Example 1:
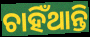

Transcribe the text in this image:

ଚାହିଁଥାନ୍ତି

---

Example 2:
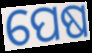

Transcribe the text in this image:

ପେଷ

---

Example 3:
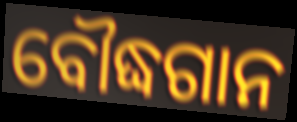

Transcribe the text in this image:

ବୌଦ୍ଧଗାନ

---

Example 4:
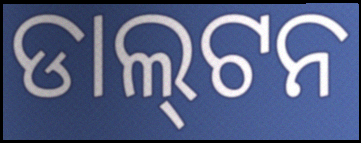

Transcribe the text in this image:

ଡାଲ୍‌ଟନ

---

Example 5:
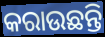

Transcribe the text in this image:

କରାଉଛନ୍ତି